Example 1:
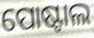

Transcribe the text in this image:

ପୋଷ୍ଟାଲ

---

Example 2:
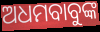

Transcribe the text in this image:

ଅଧମବାବୁଙ୍କ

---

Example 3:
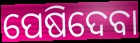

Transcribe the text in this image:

ପେଷିଦେବା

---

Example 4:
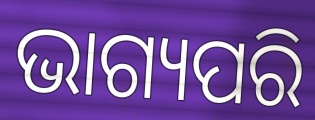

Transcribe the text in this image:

ଭାଗ୍ୟପରି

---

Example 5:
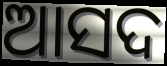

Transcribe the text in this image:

ଆସଦ